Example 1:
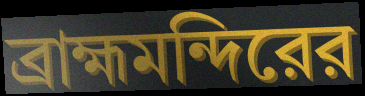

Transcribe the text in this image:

ব্রাহ্মমন্দিরের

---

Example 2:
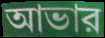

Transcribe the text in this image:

আভার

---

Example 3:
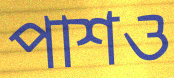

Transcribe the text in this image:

পাশও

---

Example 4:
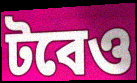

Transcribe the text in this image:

টবেও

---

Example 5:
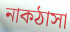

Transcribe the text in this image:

নাকঠাসা